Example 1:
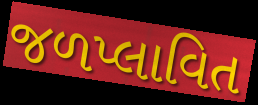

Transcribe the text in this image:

જળપ્લાવિત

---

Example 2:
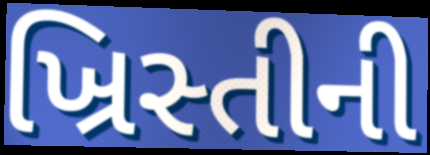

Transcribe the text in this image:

ખ્રિસ્તીની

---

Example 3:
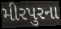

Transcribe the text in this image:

મીરપુરના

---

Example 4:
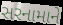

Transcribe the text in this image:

સરનામાને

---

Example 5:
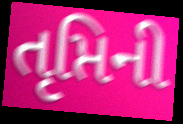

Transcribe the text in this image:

તૃપ્તિની